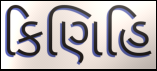
કિણિહિ